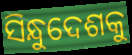
ସିନ୍ଧୁଦେଶକୁ